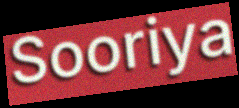
Sooriya